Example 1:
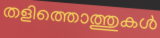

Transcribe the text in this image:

തളിത്തൊത്തുകൾ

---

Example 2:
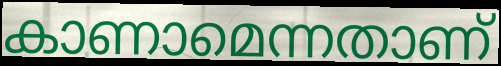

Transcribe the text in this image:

കാണാമെന്നതാണ്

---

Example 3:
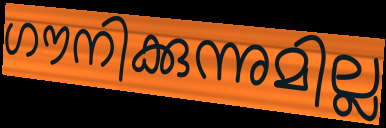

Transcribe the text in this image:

ഗൗനിക്കുന്നുമില്ല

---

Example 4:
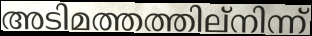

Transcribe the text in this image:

അടിമത്തത്തില്നിന്ന്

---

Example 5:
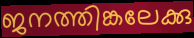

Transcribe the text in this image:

ജനത്തിങ്കലേക്കു